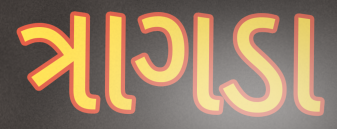
ત્રાગડા